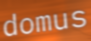
domus